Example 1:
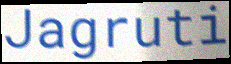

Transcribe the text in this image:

Jagruti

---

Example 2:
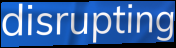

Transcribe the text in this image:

disrupting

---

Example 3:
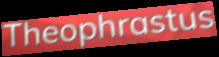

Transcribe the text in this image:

Theophrastus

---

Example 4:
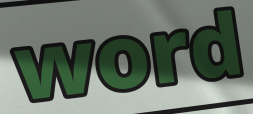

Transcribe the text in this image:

word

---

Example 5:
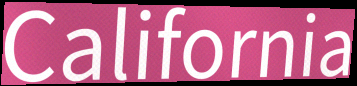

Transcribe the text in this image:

California